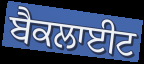
ਬੈਕਲਾਈਟ